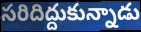
సరిదిద్దుకున్నాడు